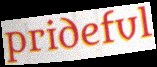
prideful